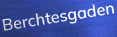
Berchtesgaden